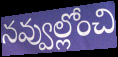
నవ్వుల్లోంచి